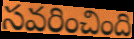
సవరించింది